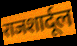
राजशार्दूल